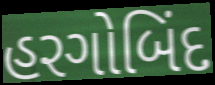
હરગોબિંદ